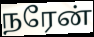
நரேன்